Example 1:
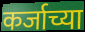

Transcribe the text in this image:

कर्जाच्या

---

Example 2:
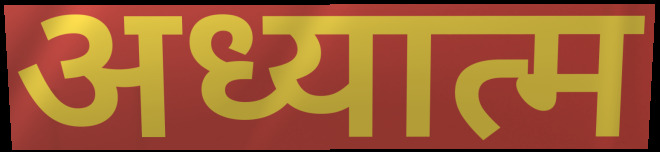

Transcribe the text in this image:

अध्यात्म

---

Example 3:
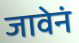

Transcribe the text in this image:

जावेनं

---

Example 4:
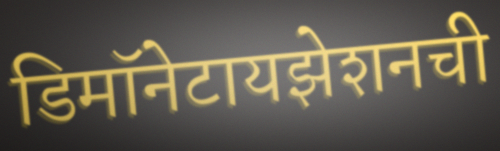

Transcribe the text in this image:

डिमॉनेटायझेशनची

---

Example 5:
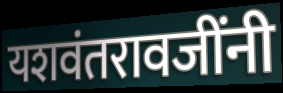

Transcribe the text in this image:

यशवंतरावजींनी